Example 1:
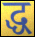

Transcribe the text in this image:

द्ध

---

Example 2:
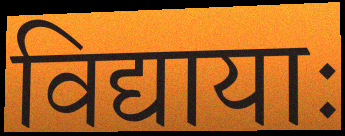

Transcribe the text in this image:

विद्यायाः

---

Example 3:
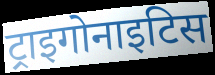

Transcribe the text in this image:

ट्राइगोनाइटिस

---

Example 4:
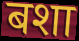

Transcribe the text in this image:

बशा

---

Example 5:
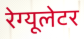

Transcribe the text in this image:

रेग्यूलेटर